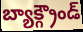
బ్యాక్గ్రౌండ్